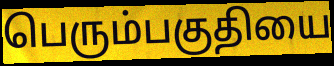
பெரும்பகுதியை